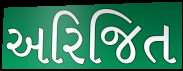
અરિજિત